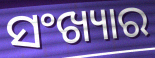
ସଂଖ୍ୟାର